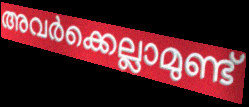
അവർക്കെല്ലാമുണ്ട്